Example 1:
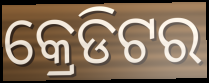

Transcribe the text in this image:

କ୍ରେଡିଟର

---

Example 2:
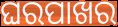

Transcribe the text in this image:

ଘରପାଖର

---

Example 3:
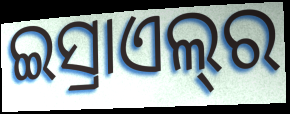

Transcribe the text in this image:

ଇସ୍ରାଏଲ୍‌ର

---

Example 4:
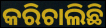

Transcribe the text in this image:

କରିଚାଲିଛି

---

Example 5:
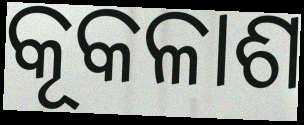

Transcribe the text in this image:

କୂକଳାଶ